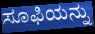
ಸೂಫಿಯನ್ನು